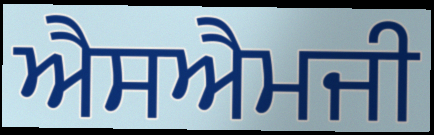
ਐਸਐਮਜੀ